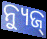
ନ୍ୟୁଜ୍